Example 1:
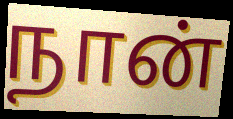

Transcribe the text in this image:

நான்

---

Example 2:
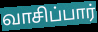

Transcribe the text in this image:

வாசிப்பார்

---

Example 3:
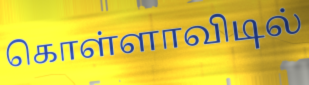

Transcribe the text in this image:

கொள்ளாவிடில்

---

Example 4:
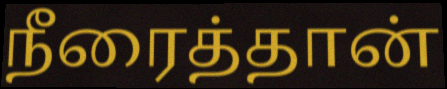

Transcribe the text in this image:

நீரைத்தான்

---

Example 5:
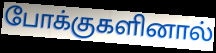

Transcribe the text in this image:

போக்குகளினால்